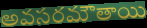
అవసరమౌతాయి